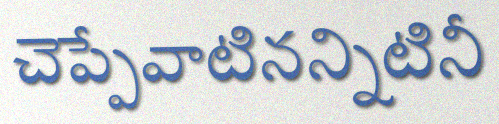
చెప్పేవాటినన్నిటినీ